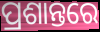
ପ୍ରଶାନ୍ତରେ